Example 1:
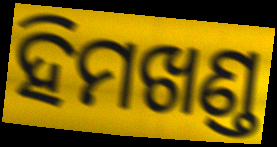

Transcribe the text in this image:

ହିମଖଣ୍ଡ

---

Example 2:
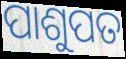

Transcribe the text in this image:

ପାଶୁପତ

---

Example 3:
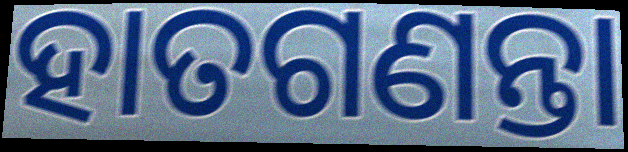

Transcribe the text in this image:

ହାତଗଣନ୍ତା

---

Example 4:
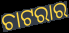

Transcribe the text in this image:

ଚାଟରାର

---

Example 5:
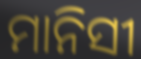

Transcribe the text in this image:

ମାନିସୀ